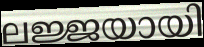
ലജ്ജയായി